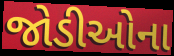
જોડીઓના